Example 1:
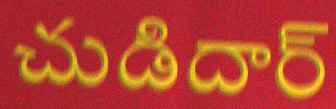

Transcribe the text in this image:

చుడిదార్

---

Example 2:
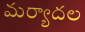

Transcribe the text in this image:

మర్యాదల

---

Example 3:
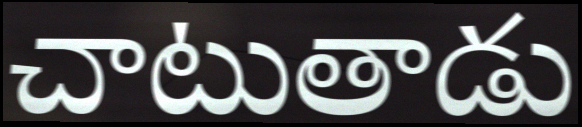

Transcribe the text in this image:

చాటుతాడు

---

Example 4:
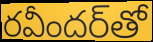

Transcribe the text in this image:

రవీందర్‌తో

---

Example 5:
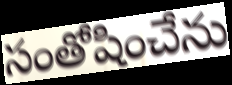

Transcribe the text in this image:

సంతోషించేను